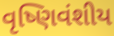
વૃષ્ણિવંશીય